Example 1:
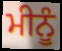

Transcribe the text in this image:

ਮੀਨੂੰ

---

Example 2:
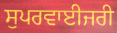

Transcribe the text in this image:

ਸੁਪਰਵਾਈਜਰੀ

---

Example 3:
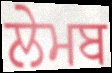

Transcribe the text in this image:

ਲੇਮਬ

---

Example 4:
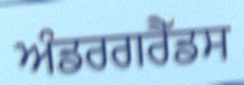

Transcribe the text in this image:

ਅੰਡਰਗਰੈੱਡਸ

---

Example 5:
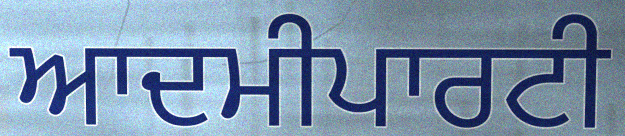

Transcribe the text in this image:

ਆਦਮੀਪਾਰਟੀ